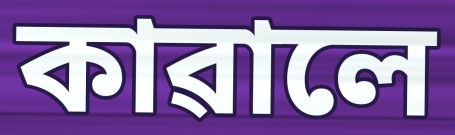
কাৱালে